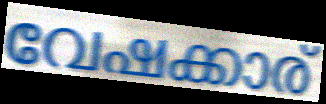
വേഷക്കാര്